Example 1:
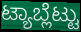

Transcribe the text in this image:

ಟ್ಯಾಬ್ಲೆಟ್ಟು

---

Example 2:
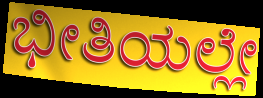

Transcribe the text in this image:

ಭೀತಿಯಲ್ಲೇ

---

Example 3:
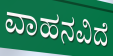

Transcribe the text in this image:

ವಾಹನವಿದೆ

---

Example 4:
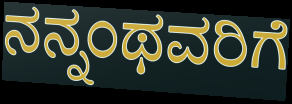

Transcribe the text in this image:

ನನ್ನಂಥವರಿಗೆ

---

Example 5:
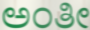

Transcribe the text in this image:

ಅಂತೀ